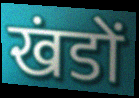
खंडों